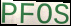
PFOS